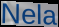
Nela